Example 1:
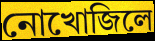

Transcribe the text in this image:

নোখোজিলে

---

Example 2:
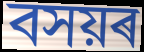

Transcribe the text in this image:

বসয়ৰ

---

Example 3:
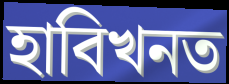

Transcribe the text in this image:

হাবিখনত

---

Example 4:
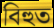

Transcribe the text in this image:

বিহুত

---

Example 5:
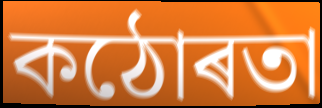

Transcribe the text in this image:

কঠোৰতা